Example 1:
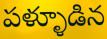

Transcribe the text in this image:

పళ్ళూడిన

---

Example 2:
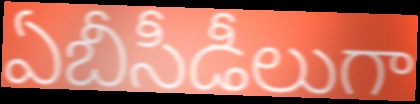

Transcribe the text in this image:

ఏబీసీడీలుగా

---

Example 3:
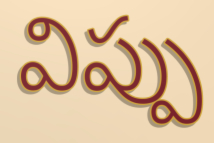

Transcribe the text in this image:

విప్పు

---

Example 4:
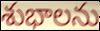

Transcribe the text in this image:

శుభాలను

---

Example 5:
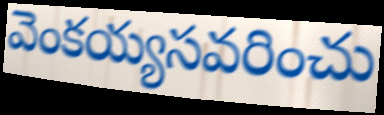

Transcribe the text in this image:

వెంకయ్యసవరించు